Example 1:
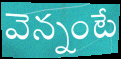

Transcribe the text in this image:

వెన్నంటే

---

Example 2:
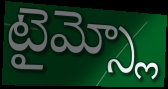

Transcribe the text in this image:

టైమ్స్లో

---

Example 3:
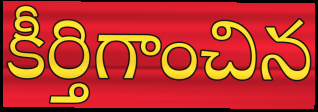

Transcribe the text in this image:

కీర్తిగాంచిన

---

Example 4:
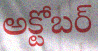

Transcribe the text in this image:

అక్టోబర్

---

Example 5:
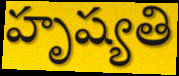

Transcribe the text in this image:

హృష్యతి